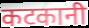
कटकानी